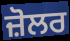
ਜ਼ੋਲਰ